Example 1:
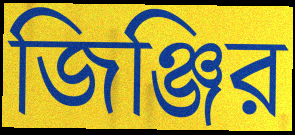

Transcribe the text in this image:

জিঞ্জির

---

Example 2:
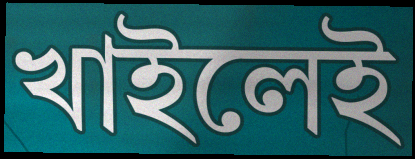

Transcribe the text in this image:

খাইলেই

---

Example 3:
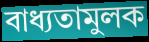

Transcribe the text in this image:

বাধ্যতামুলক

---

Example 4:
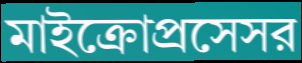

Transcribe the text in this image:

মাইক্রোপ্রসেসর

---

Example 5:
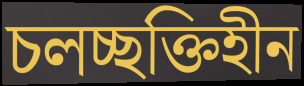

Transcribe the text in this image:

চলচ্ছক্তিহীন